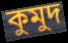
কুমুদ